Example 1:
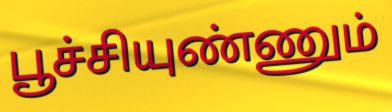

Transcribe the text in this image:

பூச்சியுண்ணும்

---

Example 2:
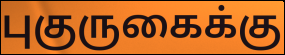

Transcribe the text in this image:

புகுருகைக்கு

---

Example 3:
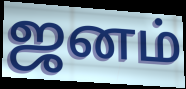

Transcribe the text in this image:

ஜனம்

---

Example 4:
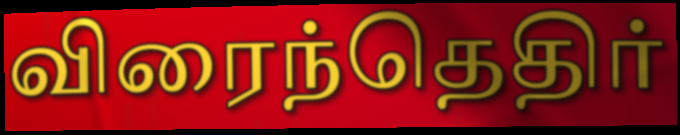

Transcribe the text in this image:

விரைந்தெதிர்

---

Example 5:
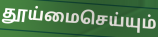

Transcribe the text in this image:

தூய்மைசெய்யும்